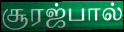
சூரஜ்பால்